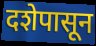
दशेपासून